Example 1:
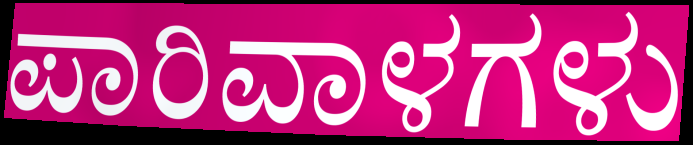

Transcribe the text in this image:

ಪಾರಿವಾಳಗಳು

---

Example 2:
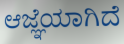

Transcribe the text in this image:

ಆಜ್ಞೆಯಾಗಿದೆ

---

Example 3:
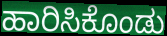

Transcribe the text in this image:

ಹಾರಿಸಿಕೊಂಡು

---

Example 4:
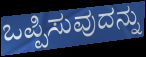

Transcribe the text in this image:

ಒಪ್ಪಿಸುವುದನ್ನು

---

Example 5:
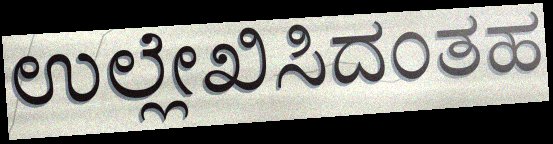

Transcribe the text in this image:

ಉಲ್ಲೇಖಿಸಿದಂತಹ